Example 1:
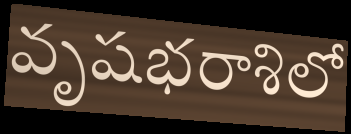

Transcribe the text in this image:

వృషభరాశిలో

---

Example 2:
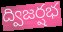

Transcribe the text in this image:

ద్విజర్షభ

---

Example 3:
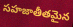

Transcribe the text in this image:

సహజాతీతమైన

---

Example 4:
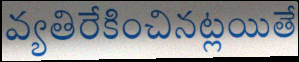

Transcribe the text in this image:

వ్యతిరేకించినట్లయితే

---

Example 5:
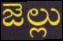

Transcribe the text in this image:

జెల్లు